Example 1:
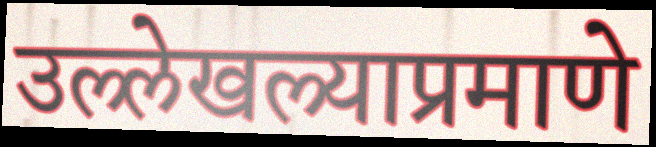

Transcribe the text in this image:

उल्लेखल्याप्रमाणे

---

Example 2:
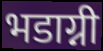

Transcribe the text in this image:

भडाग्नी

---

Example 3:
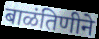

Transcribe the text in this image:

बाळंतिणीने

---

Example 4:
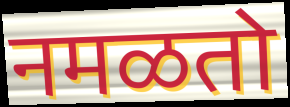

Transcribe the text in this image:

नमळतो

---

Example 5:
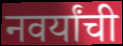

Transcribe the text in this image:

नवर्यांची